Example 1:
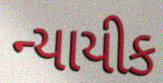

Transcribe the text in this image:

ન્યાયીક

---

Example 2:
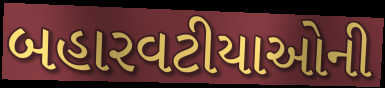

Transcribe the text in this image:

બહારવટીયાઓની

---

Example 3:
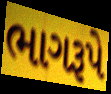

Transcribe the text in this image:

ભાગરૂપે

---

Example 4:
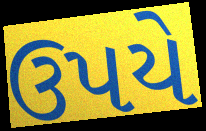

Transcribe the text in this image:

ઉપયે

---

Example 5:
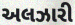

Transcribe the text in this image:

અલઝારી